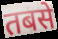
तबसे